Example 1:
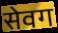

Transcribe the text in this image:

सेवग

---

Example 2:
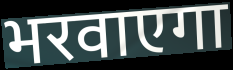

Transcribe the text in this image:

भरवाएगा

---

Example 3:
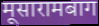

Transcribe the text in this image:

मूसारामबाग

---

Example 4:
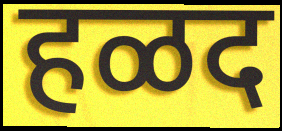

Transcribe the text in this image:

हळद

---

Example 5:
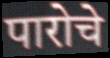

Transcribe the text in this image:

पारोचे